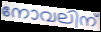
നോവലിന്